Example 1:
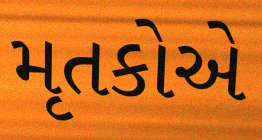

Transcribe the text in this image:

મૃતકોએ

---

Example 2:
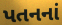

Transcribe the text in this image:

પતનનાં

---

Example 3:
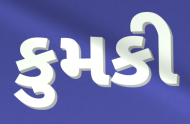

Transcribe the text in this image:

કુમકી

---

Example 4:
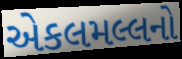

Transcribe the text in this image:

એકલમલ્લનો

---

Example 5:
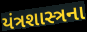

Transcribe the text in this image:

યંત્રશાસ્ત્રના